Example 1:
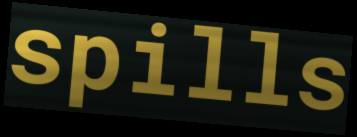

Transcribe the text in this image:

spills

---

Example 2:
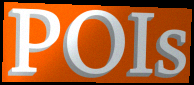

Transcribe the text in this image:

POIs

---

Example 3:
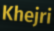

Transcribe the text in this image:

Khejri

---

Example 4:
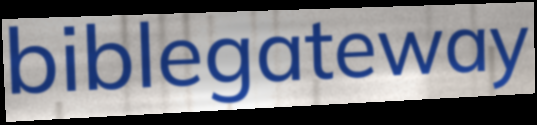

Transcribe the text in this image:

biblegateway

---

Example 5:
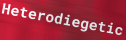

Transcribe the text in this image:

Heterodiegetic